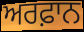
ਅਰਫ਼ਾਨ